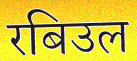
रबिउल